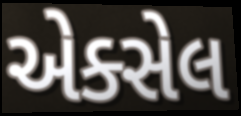
એક્સેલ